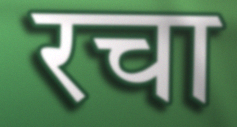
रचा